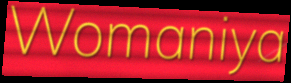
Womaniya